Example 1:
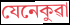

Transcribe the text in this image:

যেনেকুৱা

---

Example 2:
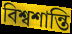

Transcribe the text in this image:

বিশ্বশান্তি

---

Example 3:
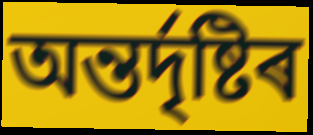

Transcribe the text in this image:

অন্তৰ্দৃষ্টিৰ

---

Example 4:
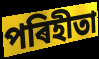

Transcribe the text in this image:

পৰিহীতা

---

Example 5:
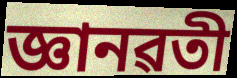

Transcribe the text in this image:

জ্ঞানৱতী